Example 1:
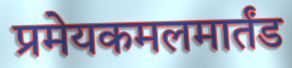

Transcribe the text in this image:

प्रमेयकमलमार्तंड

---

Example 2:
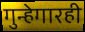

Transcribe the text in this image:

गुन्हेगारही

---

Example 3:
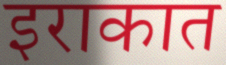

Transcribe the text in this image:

इराकात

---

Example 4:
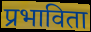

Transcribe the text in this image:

प्रभाविता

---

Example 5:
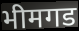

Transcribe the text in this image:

भीमगड